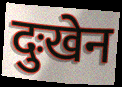
दुःखेन